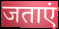
जताएं